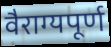
वैराग्यपूर्ण